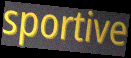
sportive